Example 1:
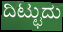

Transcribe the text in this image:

ದಿಟ್ಟುದು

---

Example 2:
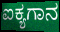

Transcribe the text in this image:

ಐಕ್ಯಗಾನ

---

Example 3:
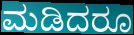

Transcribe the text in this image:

ಮಡಿದರೂ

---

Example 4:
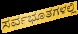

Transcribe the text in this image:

ಸರ್ವಭೂತಗಳಲ್ಲಿ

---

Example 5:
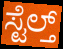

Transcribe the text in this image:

ಸ್ಟೆಲ್ತ್